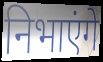
निभाएंगे